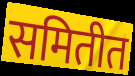
समितीत